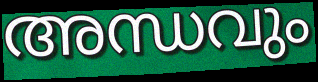
അന്ധവും